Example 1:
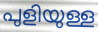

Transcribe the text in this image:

പുളിയുള്ള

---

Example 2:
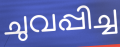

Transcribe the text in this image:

ചുവപ്പിച്ച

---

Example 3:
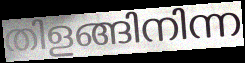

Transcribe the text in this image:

തിളങ്ങിനിന്ന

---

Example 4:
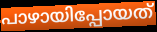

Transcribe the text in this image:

പാഴായിപ്പോയത്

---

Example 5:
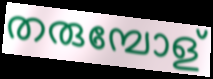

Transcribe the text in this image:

തരുമ്പോള്